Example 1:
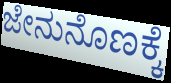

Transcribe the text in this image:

ಜೇನುನೊಣಕ್ಕೆ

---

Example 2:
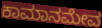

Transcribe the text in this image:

ಕಾಮಾನಮೇವ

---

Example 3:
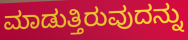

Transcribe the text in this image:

ಮಾಡುತ್ತಿರುವುದನ್ನು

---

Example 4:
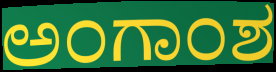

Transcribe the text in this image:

ಅಂಗಾಂಶ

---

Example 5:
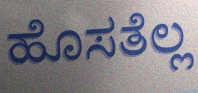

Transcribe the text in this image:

ಹೊಸತೆಲ್ಲ